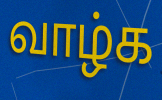
வாழ்க